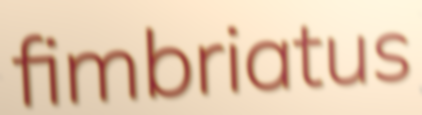
fimbriatus